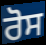
ਰੋਸ